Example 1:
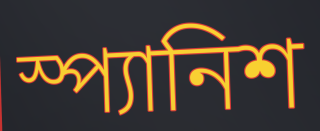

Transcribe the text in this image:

স্প্যানিশ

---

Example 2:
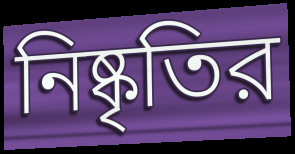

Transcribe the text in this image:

নিষ্কৃতির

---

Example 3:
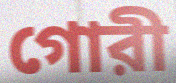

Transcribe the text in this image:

গোরী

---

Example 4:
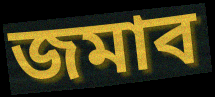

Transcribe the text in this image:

জমাব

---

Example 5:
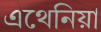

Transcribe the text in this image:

এথেনিয়া